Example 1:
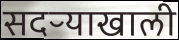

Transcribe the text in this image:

सदऱ्याखाली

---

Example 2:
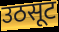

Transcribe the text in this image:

उठसूट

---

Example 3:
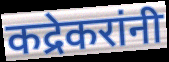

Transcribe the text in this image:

कद्रेकरांनी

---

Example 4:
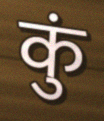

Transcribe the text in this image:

कुं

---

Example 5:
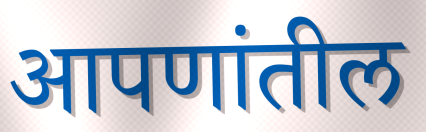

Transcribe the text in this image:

आपणांतील